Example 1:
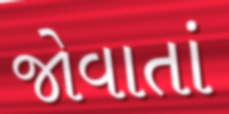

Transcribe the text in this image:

જોવાતાં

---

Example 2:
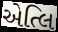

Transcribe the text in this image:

એત્લિ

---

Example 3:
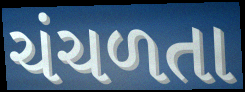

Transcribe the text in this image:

ચંચળતા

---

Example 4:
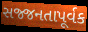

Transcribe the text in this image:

સજ્જનતાપૂર્વક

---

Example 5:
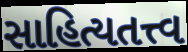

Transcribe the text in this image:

સાહિત્યતત્ત્વ